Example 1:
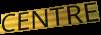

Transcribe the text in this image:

CENTRE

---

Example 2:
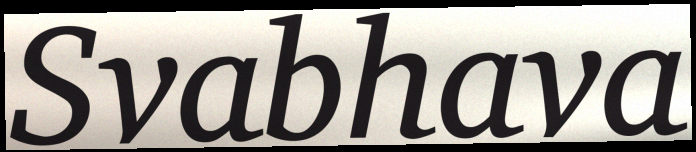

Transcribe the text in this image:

Svabhava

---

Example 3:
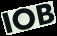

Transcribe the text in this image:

IOB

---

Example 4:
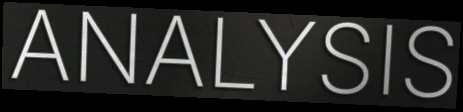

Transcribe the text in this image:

ANALYSIS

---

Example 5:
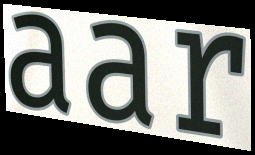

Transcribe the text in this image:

aar